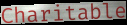
Charitable